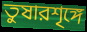
তুষারশৃঙ্গে